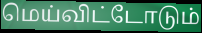
மெய்விட்டோடும்